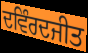
ਦਵਿੰਰਦਜੀਤ